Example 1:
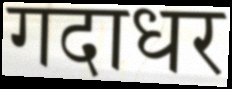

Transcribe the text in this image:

गदाधर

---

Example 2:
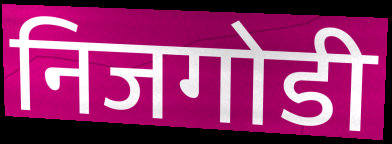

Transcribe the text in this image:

निजगोडी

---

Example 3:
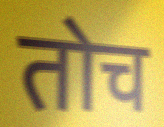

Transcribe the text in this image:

तोच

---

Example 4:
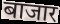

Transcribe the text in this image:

बाजार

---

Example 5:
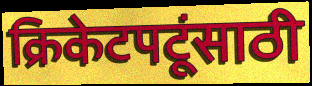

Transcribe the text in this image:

क्रिकेटपटूंसाठी